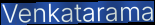
Venkatarama